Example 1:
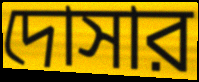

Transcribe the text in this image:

দোসার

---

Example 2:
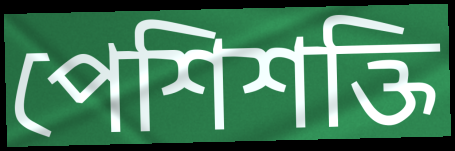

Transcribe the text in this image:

পেশিশক্তি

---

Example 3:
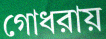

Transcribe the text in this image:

গোধরায়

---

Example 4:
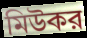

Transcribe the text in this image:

মিউকর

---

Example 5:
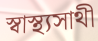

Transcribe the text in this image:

স্বাস্থ্যসাথী